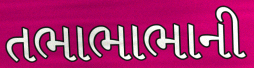
તભાભાભાની